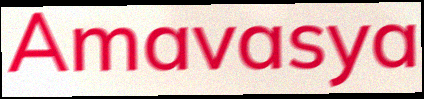
Amavasya